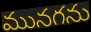
మునగను